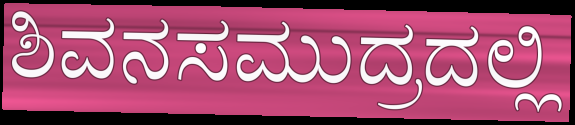
ಶಿವನಸಮುದ್ರದಲ್ಲಿ